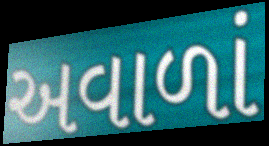
અવાળાં